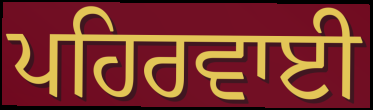
ਪਹਿਰਵਾਈ